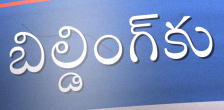
బిల్డింగ్‌కు